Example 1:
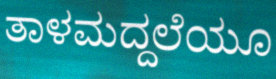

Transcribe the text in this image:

ತಾಳಮದ್ದಲೆಯೂ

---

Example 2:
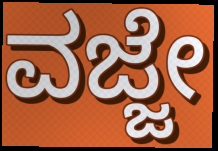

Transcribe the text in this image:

ವಜ್ಜೇ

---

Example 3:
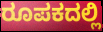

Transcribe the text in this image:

ರೂಪಕದಲ್ಲಿ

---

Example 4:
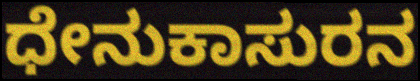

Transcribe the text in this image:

ಧೇನುಕಾಸುರನ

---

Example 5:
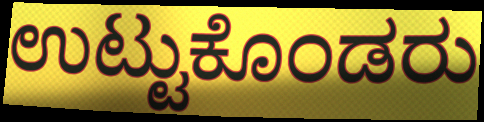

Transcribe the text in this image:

ಉಟ್ಟುಕೊಂಡರು